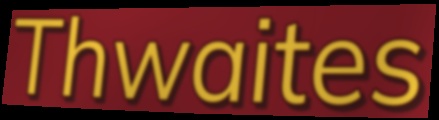
Thwaites